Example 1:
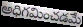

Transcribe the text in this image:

అధిగమించడమే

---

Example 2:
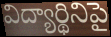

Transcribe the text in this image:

విద్యార్థినిపై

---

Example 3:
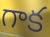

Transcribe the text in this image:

గాక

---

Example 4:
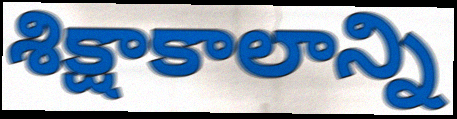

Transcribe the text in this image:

శిక్షాకాలాన్ని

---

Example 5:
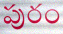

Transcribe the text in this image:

పురం